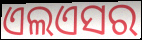
ଏଲଏସର